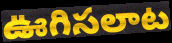
ఊగిసలాట